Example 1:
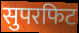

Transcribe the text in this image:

सुपरफिट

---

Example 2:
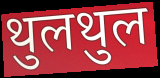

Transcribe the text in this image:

थुलथुल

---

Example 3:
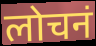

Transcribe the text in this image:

लोचनं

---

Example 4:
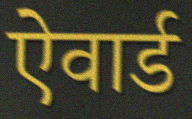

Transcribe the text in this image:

ऐवार्ड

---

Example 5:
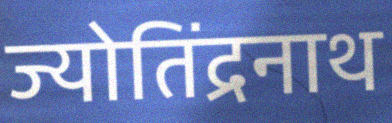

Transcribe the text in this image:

ज्योतिंद्रनाथ